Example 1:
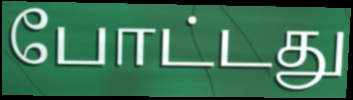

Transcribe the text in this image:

போட்டது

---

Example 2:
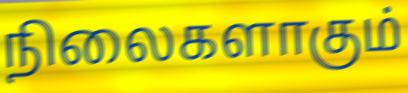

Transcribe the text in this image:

நிலைகளாகும்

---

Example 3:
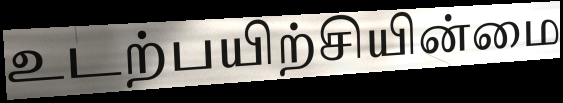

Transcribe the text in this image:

உடற்பயிற்சியின்மை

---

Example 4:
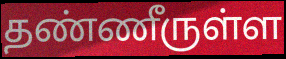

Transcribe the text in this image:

தண்ணீருள்ள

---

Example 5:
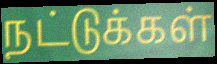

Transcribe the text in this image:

நட்டுக்கள்